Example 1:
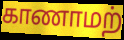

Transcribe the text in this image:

காணாமற்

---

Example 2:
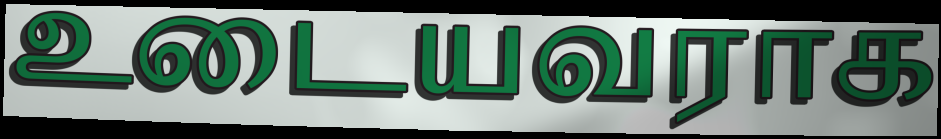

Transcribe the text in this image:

உடையவராக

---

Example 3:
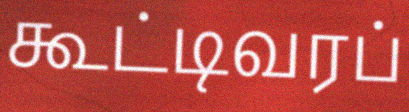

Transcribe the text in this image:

கூட்டிவரப்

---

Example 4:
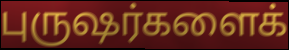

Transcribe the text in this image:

புருஷர்களைக்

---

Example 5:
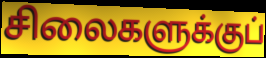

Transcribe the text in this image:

சிலைகளுக்குப்